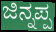
ಜಿನ್ನಪ್ಪ